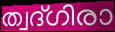
ത്വദ്ഗിരാ